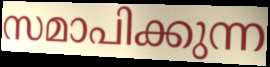
സമാപിക്കുന്ന